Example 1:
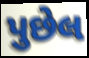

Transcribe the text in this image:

પુછેલ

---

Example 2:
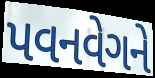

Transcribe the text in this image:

પવનવેગને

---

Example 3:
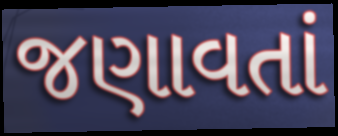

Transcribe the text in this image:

જણાવતાં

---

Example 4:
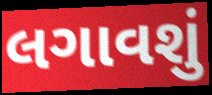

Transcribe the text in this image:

લગાવશું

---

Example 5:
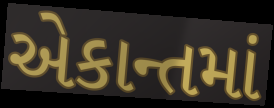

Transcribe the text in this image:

એકાન્તમાં